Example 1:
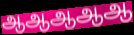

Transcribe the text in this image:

ஆஆஆஆஆ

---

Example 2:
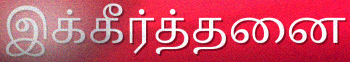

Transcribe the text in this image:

இக்கீர்த்தனை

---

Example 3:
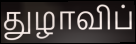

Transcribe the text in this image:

துழாவிப்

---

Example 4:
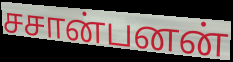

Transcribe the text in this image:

சசான்பனன்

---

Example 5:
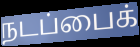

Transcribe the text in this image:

நடப்பைக்